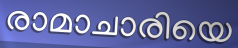
രാമാചാരിയെ